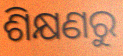
ଶିକ୍ଷଣରୁ